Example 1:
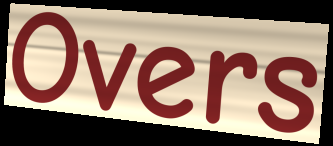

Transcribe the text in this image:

Overs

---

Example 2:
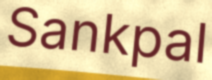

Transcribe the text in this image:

Sankpal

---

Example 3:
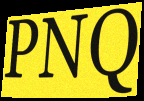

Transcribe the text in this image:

PNQ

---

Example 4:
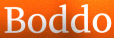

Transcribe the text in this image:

Boddo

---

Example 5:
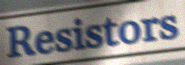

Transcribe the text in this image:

Resistors